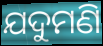
ଯଦୁମଣି